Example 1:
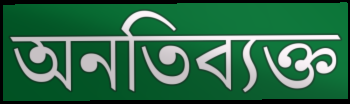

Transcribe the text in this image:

অনতিব্যক্ত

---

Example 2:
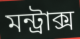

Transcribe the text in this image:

মন্ট্রাক্স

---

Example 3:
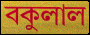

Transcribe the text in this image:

বকুলাল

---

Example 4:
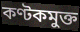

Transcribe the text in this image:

কণ্টকমুক্ত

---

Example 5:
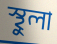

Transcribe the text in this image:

স্থুলা